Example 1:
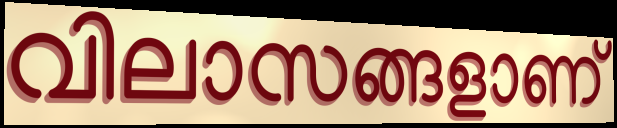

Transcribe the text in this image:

വിലാസങ്ങളാണ്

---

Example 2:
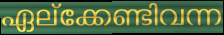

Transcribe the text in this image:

ഏല്ക്കേണ്ടിവന്ന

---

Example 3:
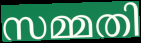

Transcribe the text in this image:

സമ്മതി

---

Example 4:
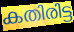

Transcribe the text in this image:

കതിരിട്ട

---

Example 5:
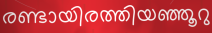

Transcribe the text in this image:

രണ്ടായിരത്തിയഞ്ഞൂറു